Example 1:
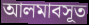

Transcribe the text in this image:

আলমাবসূত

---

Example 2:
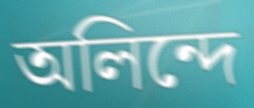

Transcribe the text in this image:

অলিন্দে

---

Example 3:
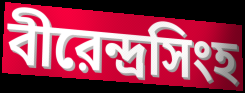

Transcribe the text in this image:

বীরেন্দ্রসিংহ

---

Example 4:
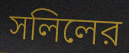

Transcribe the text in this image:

সলিলের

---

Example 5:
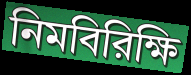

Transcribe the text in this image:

নিমবিরিক্ষি